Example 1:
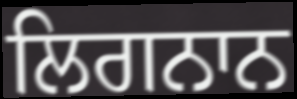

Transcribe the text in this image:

ਲਿਗਨਾਨ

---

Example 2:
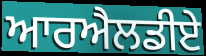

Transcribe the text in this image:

ਆਰਐਲਡੀਏ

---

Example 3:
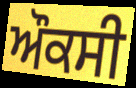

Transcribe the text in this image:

ਔਕਸੀ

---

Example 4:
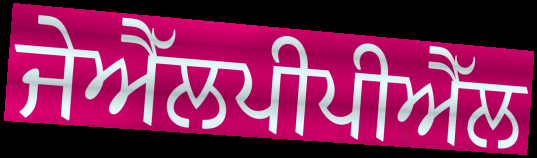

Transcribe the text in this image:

ਜੇਐੱਲਪੀਪੀਐੱਲ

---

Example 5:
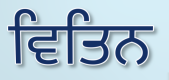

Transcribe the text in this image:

ਵਿਤਿਨ